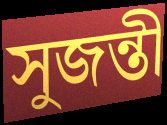
সুজন্তী